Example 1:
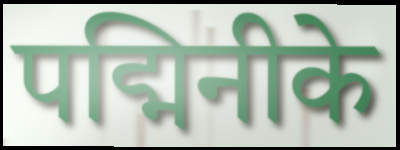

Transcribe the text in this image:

पद्मिनीके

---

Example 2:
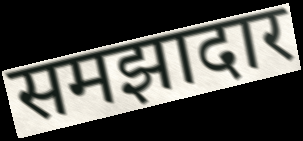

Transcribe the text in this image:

समझादार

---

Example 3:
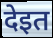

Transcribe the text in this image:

देइत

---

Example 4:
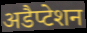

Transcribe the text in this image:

अडैप्टेशन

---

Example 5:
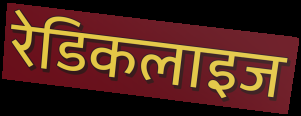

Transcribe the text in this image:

रेडिकलाइज